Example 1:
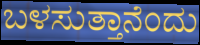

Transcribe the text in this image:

ಬಳಸುತ್ತಾನೆಂದು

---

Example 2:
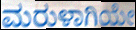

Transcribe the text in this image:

ಮರುಳಾಗಿಯೇ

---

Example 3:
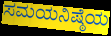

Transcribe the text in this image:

ಸಮಯನಿಷ್ಠೆಯ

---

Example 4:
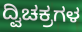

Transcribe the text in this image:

ದ್ವಿಚಕ್ರಗಳ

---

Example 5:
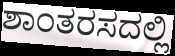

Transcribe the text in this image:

ಶಾಂತರಸದಲ್ಲಿ